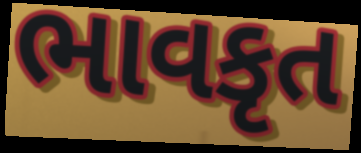
ભાવકૃત